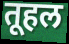
तूहल